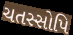
ચતસ્સોપિ